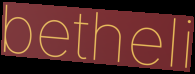
betheli